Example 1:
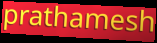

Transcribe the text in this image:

prathamesh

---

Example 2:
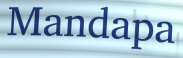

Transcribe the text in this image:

Mandapa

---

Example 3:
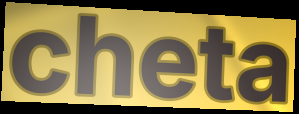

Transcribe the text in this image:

cheta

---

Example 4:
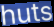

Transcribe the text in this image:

huts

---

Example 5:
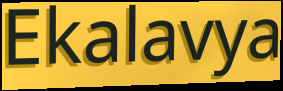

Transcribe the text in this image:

Ekalavya